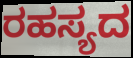
ರಹಸ್ಯದ